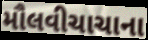
મૌલવીચાચાના